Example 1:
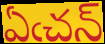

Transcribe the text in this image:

ఏఁచన్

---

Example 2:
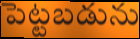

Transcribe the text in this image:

పెట్టబడును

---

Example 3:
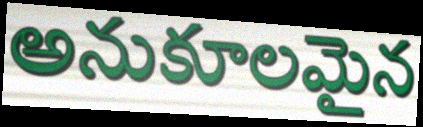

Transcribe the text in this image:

అనుకూలమైన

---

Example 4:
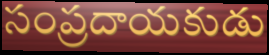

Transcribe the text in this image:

సంప్రదాయకుడు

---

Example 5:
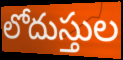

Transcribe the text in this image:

లోదుస్తుల